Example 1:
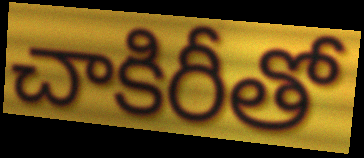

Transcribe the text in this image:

చాకిరీతో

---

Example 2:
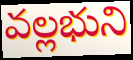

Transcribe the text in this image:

వల్లభుని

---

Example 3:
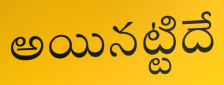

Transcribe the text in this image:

అయినట్టిదే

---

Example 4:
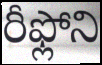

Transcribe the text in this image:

రీఫ్లోని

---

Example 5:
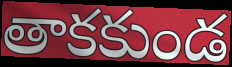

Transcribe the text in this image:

తాకకుండ